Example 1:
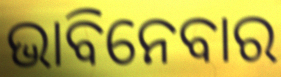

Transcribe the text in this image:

ଭାବିନେବାର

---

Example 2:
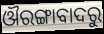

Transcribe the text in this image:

ଔରଙ୍ଗାବାଦରୁ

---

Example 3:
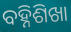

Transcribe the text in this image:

ବହ୍ନିଶିଖା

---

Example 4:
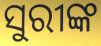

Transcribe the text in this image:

ସୁରୀଙ୍କ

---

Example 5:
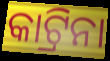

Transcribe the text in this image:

କାଟ୍ରିନା